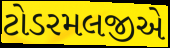
ટોડરમલજીએ